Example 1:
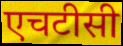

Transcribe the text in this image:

एचटीसी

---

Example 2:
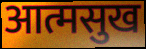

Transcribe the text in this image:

आत्मसुख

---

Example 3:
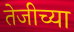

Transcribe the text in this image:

तेजीच्या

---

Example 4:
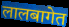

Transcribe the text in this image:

लालबागेत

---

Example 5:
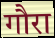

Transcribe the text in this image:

गौरा